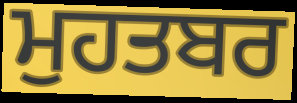
ਮੁਹਤਬਰ